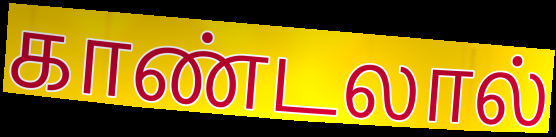
காண்டலால்